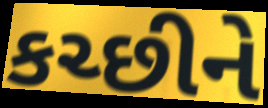
કચ્છીને